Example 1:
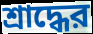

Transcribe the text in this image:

শ্রাদ্ধের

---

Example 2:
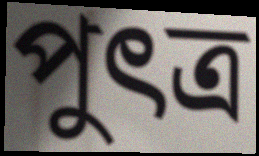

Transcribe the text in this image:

পুৎত্র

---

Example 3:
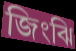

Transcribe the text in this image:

জিংঝি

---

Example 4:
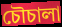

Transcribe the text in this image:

চৌচালা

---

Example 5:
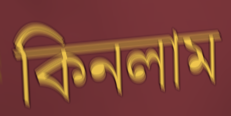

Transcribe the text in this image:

কিনলাম